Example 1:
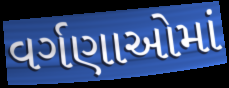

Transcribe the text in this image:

વર્ગણાઓમાં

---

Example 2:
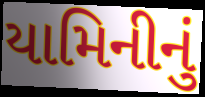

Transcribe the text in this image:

યામિનીનું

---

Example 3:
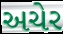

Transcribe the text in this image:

અચેર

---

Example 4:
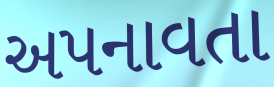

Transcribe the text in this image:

અપનાવતા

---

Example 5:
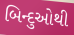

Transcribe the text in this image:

બિન્દુઓથી